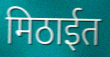
मिठाईत